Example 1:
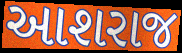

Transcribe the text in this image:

આશરાજ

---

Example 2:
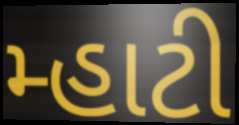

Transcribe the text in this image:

મ્હાટી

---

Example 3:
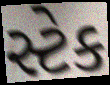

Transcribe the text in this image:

સ્ટેક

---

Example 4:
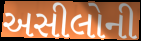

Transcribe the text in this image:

અસીલોની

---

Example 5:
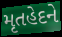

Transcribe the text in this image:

મૃતહેદને